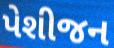
પેશીજન